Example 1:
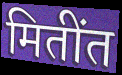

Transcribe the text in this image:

मितींत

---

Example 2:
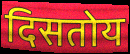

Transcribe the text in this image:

दिसतोय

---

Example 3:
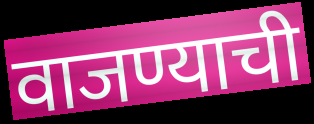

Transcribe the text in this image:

वाजण्याची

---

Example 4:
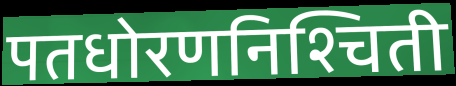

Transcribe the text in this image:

पतधोरणनिश्चिती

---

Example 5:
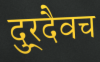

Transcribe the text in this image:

दुर्दैवच